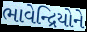
ભાવેન્દ્રિયોને